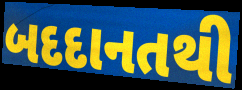
બદદાનતથી